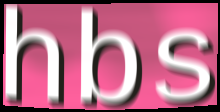
hbs